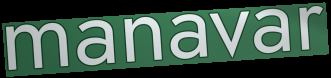
manavar